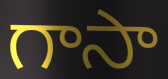
గాసా